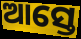
ଆସ୍ତେ